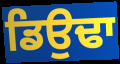
ਡਿਉਢਾ